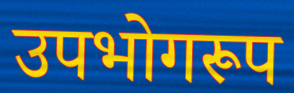
उपभोगरूप